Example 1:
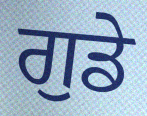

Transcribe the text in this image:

ਗੁਡੇ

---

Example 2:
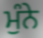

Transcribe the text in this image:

ਮੁੰਨੇ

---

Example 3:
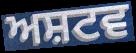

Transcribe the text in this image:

ਅਸ਼ਟਵ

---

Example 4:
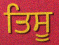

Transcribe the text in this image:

ਤਿਸੂ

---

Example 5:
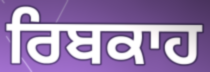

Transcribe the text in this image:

ਰਿਬਕਾਹ